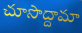
చూసొద్దామా